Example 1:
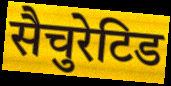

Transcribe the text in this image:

सैचुरेटिड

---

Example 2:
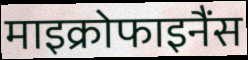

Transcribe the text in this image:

माइक्रोफाइनैंस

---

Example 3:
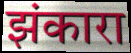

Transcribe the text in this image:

झंकारा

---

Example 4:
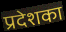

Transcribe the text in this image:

प्रदेशका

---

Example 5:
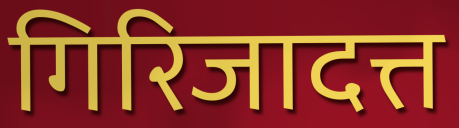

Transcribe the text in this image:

गिरिजादत्त